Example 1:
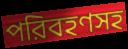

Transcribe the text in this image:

পরিবহণসহ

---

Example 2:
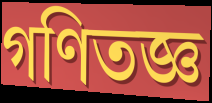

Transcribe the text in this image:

গণিতজ্ঞ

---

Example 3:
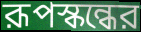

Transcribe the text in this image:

রূপস্কন্ধের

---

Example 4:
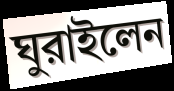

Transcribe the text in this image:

ঘুরাইলেন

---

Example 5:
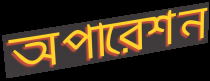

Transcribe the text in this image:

অপারেশন